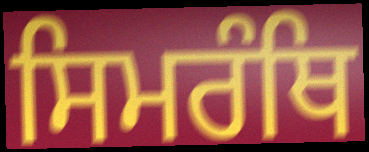
ਸਿਮਰੰਥਿ